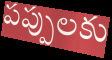
పప్పులకు